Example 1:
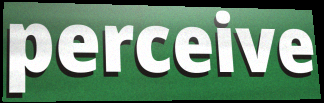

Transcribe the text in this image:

perceive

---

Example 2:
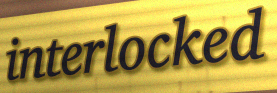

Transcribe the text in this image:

interlocked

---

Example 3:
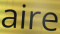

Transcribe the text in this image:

aire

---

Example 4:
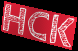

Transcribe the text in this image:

HCK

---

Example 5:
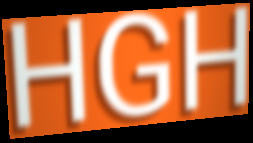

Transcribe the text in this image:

HGH